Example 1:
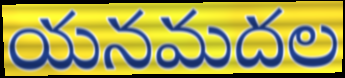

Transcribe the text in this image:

యనమదల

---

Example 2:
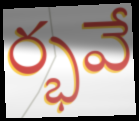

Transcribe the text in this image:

ర్భవే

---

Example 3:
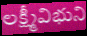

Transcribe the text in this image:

లక్ష్మీవిభుని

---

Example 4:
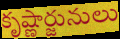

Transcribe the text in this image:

కృష్ణార్జునులు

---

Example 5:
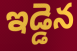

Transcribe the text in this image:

ఇడ్డెన